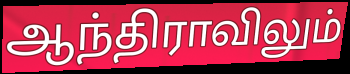
ஆந்திராவிலும்